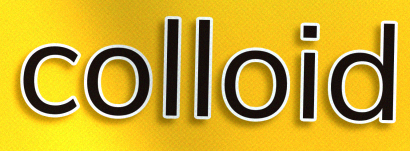
colloid